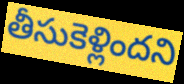
తీసుకెళ్లిందని